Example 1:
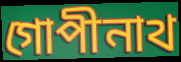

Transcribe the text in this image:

গোপীনাথ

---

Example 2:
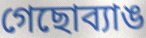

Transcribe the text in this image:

গেছোব্যাঙ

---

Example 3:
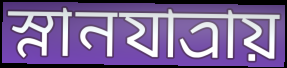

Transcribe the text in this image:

স্নানযাত্রায়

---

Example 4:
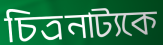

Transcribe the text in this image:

চিত্রনাট্যকে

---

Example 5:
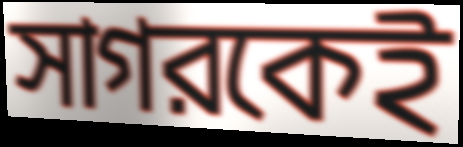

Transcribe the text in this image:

সাগরকেই